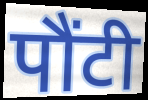
पौंटी